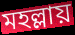
মহল্লায়